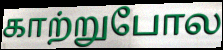
காற்றுபோல